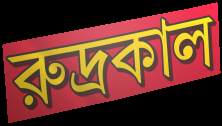
রুদ্রকাল